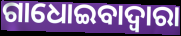
ଗାଧୋଇବାଦ୍ଵାରା